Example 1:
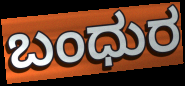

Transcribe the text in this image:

ಬಂಧುರ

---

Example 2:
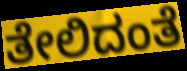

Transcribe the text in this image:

ತೇಲಿದಂತೆ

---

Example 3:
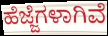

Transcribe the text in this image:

ಹೆಜ್ಜೆಗಳಾಗಿವೆ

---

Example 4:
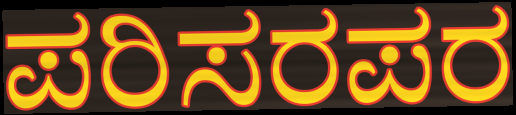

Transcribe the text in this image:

ಪರಿಸರಪರ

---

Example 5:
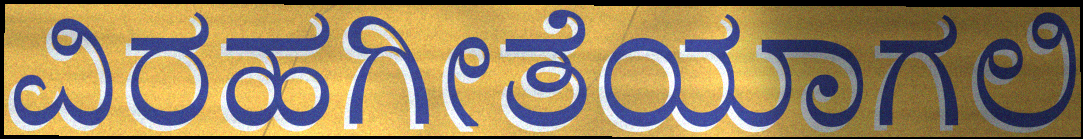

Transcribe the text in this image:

ವಿರಹಗೀತೆಯಾಗಲಿ